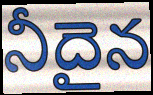
నీదైన